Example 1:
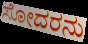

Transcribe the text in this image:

ಸೋದರನು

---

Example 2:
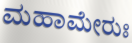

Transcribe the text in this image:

ಮಹಾಮೇರುಃ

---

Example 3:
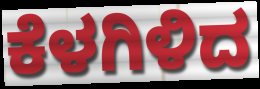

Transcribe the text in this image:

ಕೆಳಗಿಳಿದ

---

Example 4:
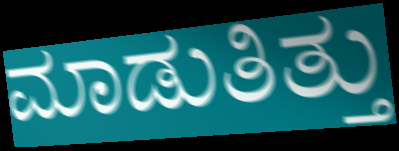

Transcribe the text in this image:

ಮಾಡುತಿತ್ತು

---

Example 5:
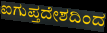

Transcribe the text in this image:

ಐಗುಪ್ತದೇಶದಿಂದ